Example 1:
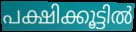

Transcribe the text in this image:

പക്ഷിക്കൂട്ടിൽ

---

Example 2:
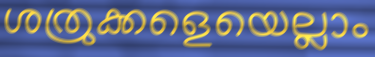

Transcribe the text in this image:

ശത്രുക്കളെയെല്ലാം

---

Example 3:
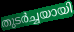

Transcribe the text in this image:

തുടർച്ചയായി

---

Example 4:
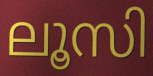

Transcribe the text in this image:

ലൂസി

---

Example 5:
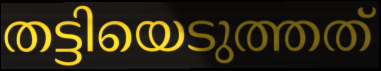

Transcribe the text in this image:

തട്ടിയെടുത്തത്